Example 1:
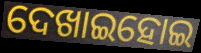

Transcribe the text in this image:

ଦେଖାଇହୋଇ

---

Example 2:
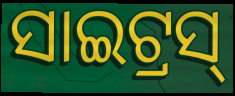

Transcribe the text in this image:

ସାଇଟ୍ରସ୍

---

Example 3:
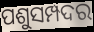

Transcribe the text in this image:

ପଶୁସମ୍ପଦର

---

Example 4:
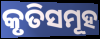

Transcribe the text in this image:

କୃତିସମୂହ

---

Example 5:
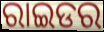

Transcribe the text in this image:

ରାଇଡର